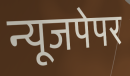
न्यूजपेपर